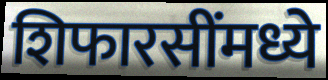
शिफारसींमध्ये